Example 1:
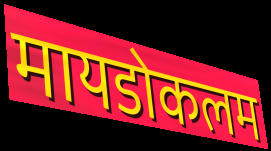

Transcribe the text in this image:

मायडोकलम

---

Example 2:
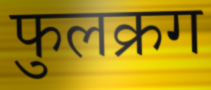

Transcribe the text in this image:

फुलक्रग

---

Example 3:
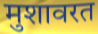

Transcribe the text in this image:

मुशावरत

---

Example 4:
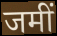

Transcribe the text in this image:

जमीं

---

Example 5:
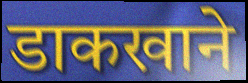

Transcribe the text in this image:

डाकखाने